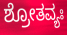
ಶ್ರೋತವ್ಯಃ